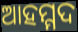
ଆହମ୍ମଦ